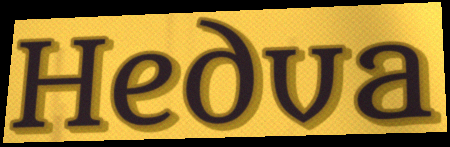
Hedua